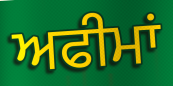
ਅਫੀਮਾਂ